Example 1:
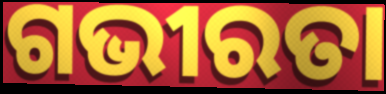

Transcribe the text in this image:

ଗଭୀରତା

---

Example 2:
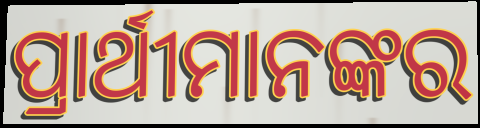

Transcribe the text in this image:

ପ୍ରାର୍ଥୀମାନଙ୍କର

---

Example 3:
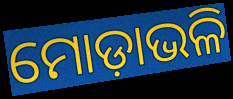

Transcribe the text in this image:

ମୋଡ଼ାଭଳି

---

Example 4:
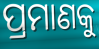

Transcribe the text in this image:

ପ୍ରମାଣକୁ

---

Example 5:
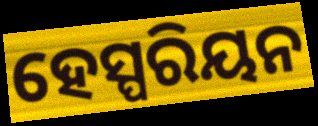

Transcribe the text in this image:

ହେସ୍ପରିୟନ